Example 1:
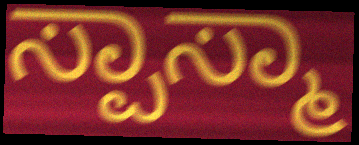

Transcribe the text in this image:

ಸ್ಪಾಸ್ಮಾ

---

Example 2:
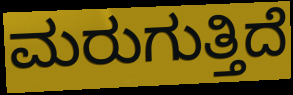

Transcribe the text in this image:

ಮರುಗುತ್ತಿದೆ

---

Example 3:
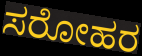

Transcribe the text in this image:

ಸರೋಹರ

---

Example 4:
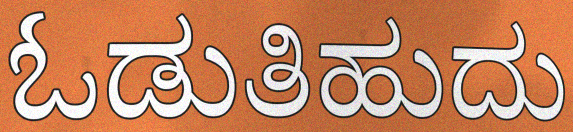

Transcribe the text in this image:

ಓಡುತಿಹುದು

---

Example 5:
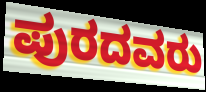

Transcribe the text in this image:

ಪುರದವರು